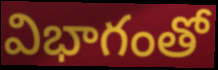
విభాగంతో